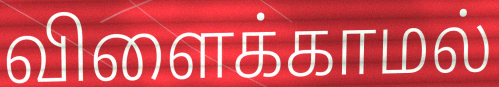
விளைக்காமல்